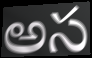
అస